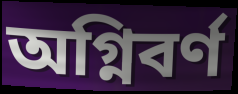
অগ্নিবর্ণ